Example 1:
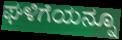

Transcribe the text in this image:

ಘಳಿಗೆಯನ್ನೂ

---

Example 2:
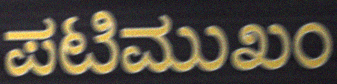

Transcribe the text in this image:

ಪಟಿಮುಖಂ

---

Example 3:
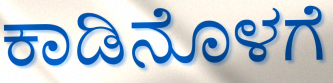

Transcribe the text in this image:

ಕಾಡಿನೊಳಗೆ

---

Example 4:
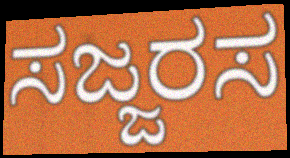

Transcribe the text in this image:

ಸಜ್ಜರಸ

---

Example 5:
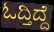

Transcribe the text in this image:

ಓದ್ತಿದ್ದೆ